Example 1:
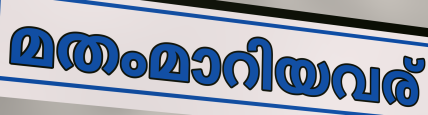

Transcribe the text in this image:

മതംമാറിയവര്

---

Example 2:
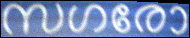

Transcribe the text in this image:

സഗരോ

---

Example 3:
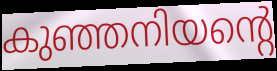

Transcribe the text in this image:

കുഞ്ഞനിയന്റെ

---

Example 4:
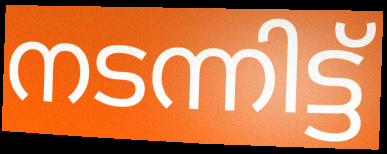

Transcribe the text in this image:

നടന്നിട്ട്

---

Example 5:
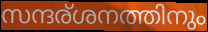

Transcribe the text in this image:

സന്ദര്ശനത്തിനും